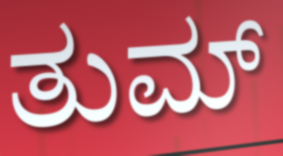
ತುಮ್